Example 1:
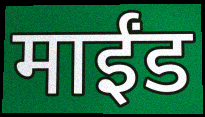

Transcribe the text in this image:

माईंड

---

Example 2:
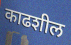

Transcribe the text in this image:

काढशील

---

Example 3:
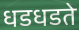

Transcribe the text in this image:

धडधडते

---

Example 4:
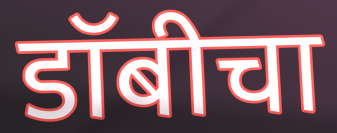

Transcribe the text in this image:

डॉबीचा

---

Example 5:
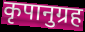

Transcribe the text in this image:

कृपानुग्रह